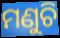
ମଣୁଚି